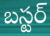
బస్టర్